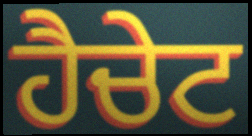
ਹੈਚੇਟ